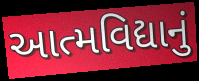
આત્મવિદ્યાનું